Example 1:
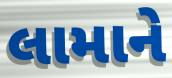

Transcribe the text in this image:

લામાને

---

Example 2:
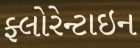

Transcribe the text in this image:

ફ્લોરેન્ટાઇન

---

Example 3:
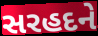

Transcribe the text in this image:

સરહદને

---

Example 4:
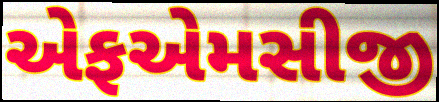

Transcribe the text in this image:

એફએમસીજી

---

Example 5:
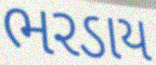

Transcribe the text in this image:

ભરડાય